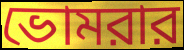
ভোমরার